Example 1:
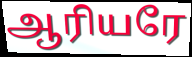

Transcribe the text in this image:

ஆரியரே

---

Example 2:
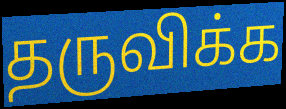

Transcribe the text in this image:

தருவிக்க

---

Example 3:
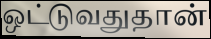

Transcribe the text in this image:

ஒட்டுவதுதான்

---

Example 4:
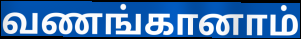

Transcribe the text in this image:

வணங்கானாம்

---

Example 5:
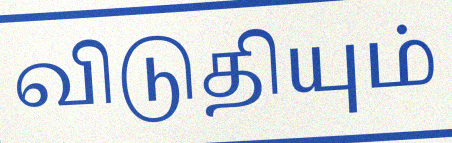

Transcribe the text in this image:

விடுதியும்